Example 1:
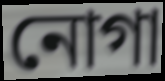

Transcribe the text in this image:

নোগা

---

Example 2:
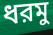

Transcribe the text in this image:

ধরমু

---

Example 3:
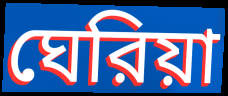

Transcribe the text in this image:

ঘেরিয়া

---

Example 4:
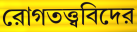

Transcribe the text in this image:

রোগতত্ত্ববিদের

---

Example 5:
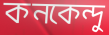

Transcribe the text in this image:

কনকেন্দু